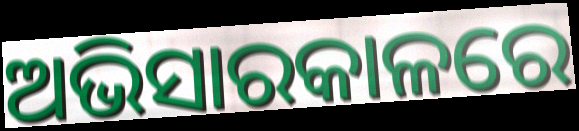
ଅଭିସାରକାଳରେ